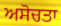
ਅਸੋਚਤਾ